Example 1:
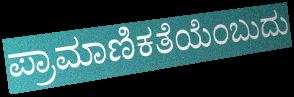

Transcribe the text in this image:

ಪ್ರಾಮಾಣಿಕತೆಯೆಂಬುದು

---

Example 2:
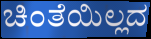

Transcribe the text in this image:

ಚಿಂತೆಯಿಲ್ಲದ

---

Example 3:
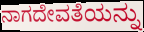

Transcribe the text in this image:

ನಾಗದೇವತೆಯನ್ನು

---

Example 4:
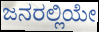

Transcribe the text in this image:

ಜನರಲ್ಲಿಯೇ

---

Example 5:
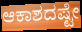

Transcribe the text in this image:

ಆಕಾಶದಷ್ಟೇ